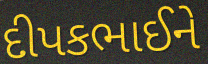
દીપકભાઈને